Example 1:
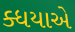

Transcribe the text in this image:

ક્ધયાએ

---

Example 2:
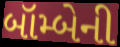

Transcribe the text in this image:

બૉમ્બેની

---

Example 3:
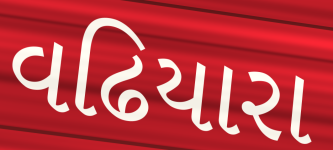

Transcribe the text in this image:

વઢિયારા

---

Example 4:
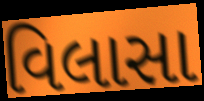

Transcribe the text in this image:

વિલાસા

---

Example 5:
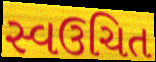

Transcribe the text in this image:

સ્વઉચિત